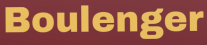
Boulenger